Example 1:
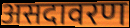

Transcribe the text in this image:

असदावरण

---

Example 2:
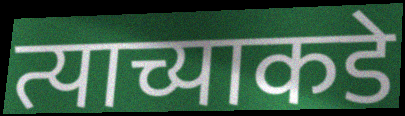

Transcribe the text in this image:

त्याच्याकडे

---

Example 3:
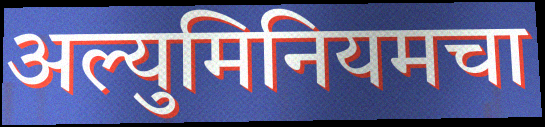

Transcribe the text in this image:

अल्युमिनियमचा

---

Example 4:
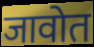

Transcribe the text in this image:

जावोत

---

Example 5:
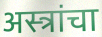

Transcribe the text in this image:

अस्त्रांचा